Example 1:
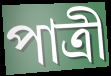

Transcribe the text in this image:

পাত্ৰী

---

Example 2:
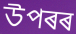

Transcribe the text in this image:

উপৰৰ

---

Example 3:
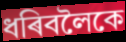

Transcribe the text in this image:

ধৰিবলৈকে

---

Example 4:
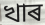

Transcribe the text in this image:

খাৰ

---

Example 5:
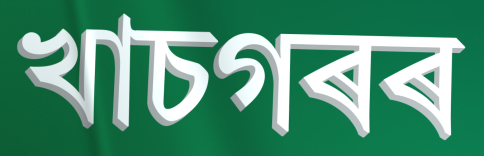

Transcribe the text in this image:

খাচগৰৰ